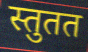
स्तुतत